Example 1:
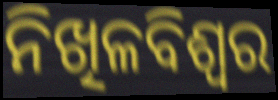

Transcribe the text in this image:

ନିଖିଳବିଶ୍ୱର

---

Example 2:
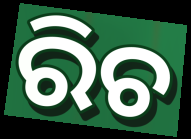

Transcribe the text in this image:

ରିଚ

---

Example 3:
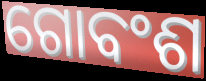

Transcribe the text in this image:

ଗୋବଂଶ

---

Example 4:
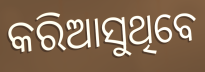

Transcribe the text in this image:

କରିଆସୁଥିବେ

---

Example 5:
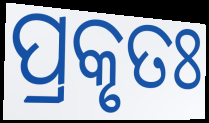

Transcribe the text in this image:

ପ୍ରକୃତଃ